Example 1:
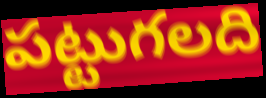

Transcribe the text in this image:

పట్టుగలది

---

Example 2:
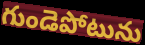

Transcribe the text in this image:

గుండెపోటును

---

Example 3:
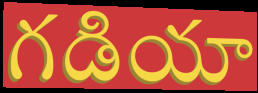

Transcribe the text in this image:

గడియా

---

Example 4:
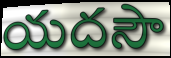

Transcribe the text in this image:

యదసౌ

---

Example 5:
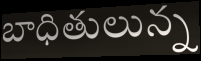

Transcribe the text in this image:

బాధితులున్న